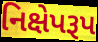
નિક્ષેપરૂપ